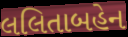
લલિતાબહેન